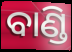
ବାଣ୍ଡି